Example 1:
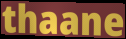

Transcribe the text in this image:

thaane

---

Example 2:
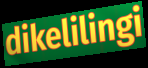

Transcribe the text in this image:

dikelilingi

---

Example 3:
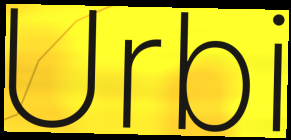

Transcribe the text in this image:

Urbi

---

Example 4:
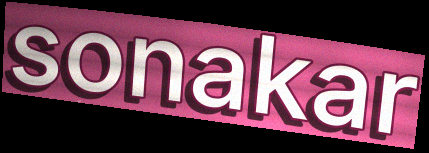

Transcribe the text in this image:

sonakar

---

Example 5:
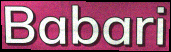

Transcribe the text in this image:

Babari